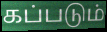
கப்படும்